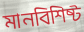
মানবিশিষ্ট